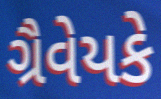
ગ્રૈવેયકે